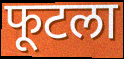
फूटला